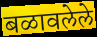
बळावलेले